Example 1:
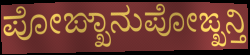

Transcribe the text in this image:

ಪೋಙ್ಖಾನುಪೋಙ್ಖನ್ತಿ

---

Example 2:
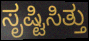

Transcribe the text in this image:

ಸೃಷ್ಟಿಸಿತ್ತು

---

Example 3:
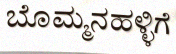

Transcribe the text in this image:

ಬೊಮ್ಮನಹಳ್ಳಿಗೆ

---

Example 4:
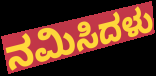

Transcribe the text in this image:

ನಮಿಸಿದಳು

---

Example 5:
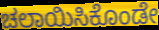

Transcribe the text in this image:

ಚಲಾಯಿಸಿಕೊಂಡೇ